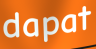
dapat